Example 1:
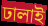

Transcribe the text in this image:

ঢালাই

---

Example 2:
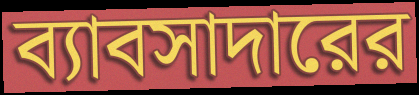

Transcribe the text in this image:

ব্যাবসাদারের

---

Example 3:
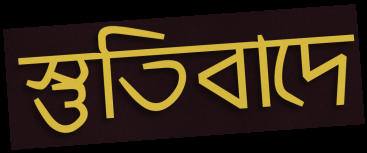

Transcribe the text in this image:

স্তুতিবাদে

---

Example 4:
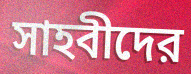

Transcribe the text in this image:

সাহবীদের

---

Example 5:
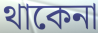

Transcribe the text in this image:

থাকেনা